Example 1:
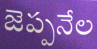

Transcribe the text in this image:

జెప్పనేల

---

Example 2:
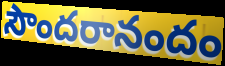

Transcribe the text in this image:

సౌందరానందం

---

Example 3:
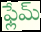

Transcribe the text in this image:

ఫ్లేమ్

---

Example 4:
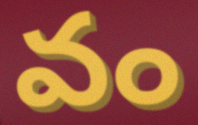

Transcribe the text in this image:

వం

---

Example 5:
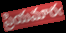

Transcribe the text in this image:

ప్రియమారఁ